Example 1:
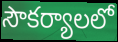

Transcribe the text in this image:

సౌకర్యాలలో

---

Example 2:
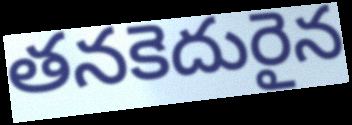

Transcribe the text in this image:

తనకెదురైన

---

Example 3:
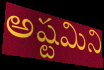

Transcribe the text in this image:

అష్టమిని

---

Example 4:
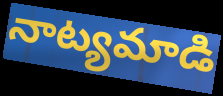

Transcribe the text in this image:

నాట్యమాడి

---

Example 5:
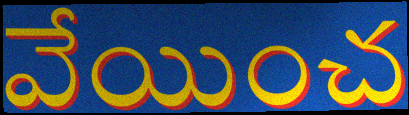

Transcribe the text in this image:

వేయించ